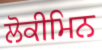
ਲੋਕੀਮਿਨ